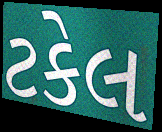
ટકેલ